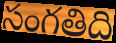
సంగతిది